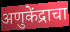
अणुकेंद्राचा